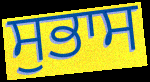
ਸੁਭਾਸ